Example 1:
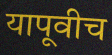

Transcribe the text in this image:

यापूवीच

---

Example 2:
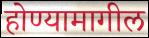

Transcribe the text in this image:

होण्यामागील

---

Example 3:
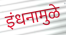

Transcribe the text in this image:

इंधनामुळे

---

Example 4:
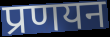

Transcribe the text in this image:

प्रणयन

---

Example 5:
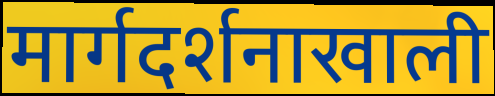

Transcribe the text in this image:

मार्गदर्शनाखाली